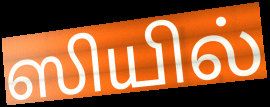
ஸியில்